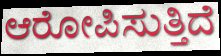
ಆರೋಪಿಸುತ್ತಿದೆ